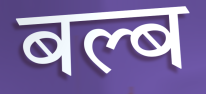
बल्‍ब